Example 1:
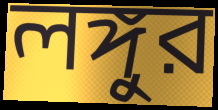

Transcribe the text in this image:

লঙ্গুর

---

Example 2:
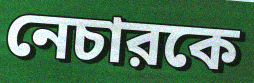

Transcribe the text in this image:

নেচারকে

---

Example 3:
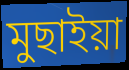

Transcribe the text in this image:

মুছাইয়া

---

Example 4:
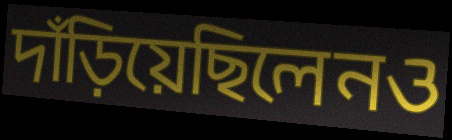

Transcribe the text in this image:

দাঁড়িয়েছিলেনও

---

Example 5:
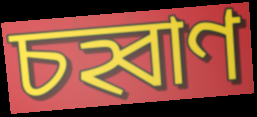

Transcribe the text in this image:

চহ্বাণ